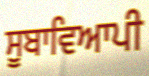
ਸੂਬਾਵਿਆਪੀ